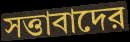
সত্তাবাদের